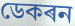
ডেকৰন